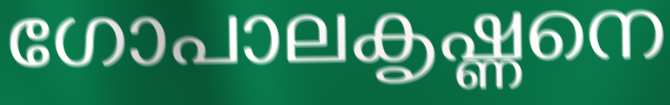
ഗോപാലകൃഷ്ണനെ